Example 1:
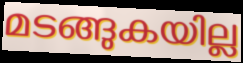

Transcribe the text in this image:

മടങ്ങുകയില്ല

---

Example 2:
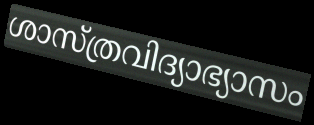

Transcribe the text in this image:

ശാസ്ത്രവിദ്യാഭ്യാസം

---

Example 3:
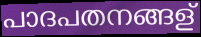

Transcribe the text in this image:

പാദപതനങ്ങള്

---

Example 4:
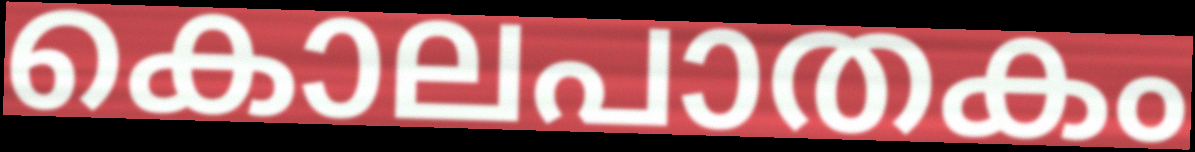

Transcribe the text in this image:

കൊലപാതകം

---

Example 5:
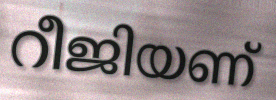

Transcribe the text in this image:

റീജിയണ്